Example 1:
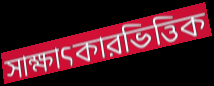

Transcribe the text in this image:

সাক্ষাৎকারভিত্তিক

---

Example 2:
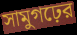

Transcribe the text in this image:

সামুগঢ়ের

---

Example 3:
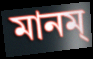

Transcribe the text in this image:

মানম্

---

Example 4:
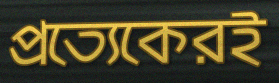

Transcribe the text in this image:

প্রত্যেকেরই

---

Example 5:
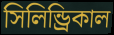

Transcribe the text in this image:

সিলিন্ড্রিকাল